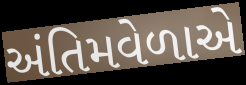
અંતિમવેળાએ